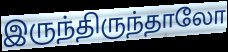
இருந்திருந்தாலோ